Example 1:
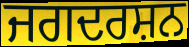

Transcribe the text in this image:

ਜਗਦਰਸ਼ਨ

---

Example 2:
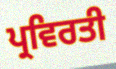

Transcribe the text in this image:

ਪ੍ਰਵਿਰਤੀ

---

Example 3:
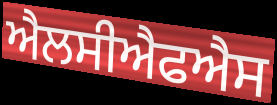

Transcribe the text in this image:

ਐਲਸੀਐਫਐਸ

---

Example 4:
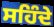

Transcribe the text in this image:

ਸਹਿੰਦੇ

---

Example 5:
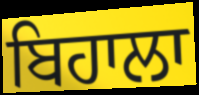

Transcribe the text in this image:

ਬਿਹਾਲਾ